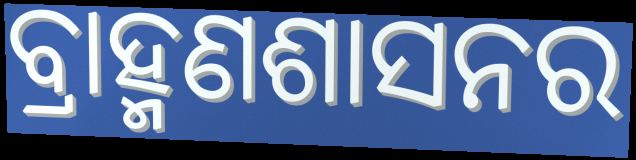
ବ୍ରାହ୍ମଣଶାସନର